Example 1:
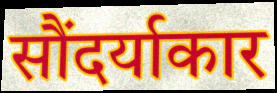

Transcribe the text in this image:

सौंदर्याकार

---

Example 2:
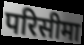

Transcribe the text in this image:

परिसीमा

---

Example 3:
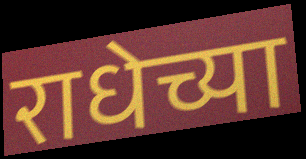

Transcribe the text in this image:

राधेच्या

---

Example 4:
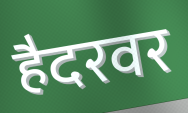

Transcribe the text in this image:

हैदरवर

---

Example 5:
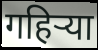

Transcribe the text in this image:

गहिर्‍या